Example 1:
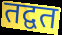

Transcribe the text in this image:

तद्वत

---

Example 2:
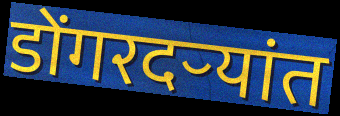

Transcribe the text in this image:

डोंगरदऱ्यांत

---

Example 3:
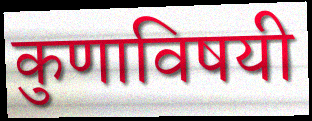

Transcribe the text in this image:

कुणाविषयी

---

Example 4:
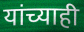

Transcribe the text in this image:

यांच्याही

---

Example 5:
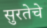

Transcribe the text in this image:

सुरतेचे